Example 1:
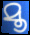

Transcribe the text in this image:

മൂ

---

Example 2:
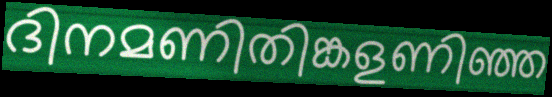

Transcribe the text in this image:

ദിനമണിതിങ്കളണിഞ്ഞ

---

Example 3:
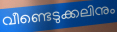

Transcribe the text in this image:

വീണ്ടെടുക്കലിനും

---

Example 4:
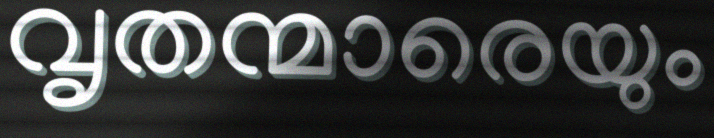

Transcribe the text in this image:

വൃതന്മാരെയും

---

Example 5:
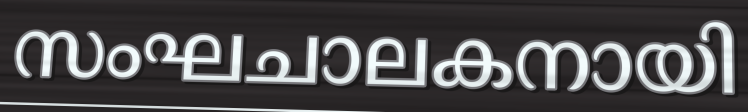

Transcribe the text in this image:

സംഘചാലകനായി